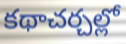
కథాచర్చల్లో